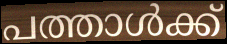
പത്താൾക്ക്